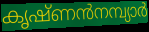
കൃഷ്ണൻനമ്പ്യാർ